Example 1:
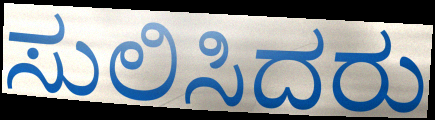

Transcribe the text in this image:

ಸುಲಿಸಿದರು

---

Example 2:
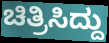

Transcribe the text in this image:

ಚಿತ್ರಿಸಿದ್ದು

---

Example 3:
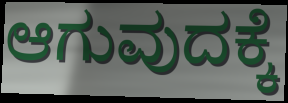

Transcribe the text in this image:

ಆಗುವುದಕ್ಕೆ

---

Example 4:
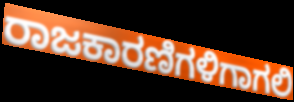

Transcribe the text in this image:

ರಾಜಕಾರಣಿಗಳಿಗಾಗಲಿ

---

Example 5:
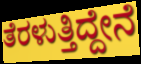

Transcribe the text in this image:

ತೆರಳುತ್ತಿದ್ದೇನೆ